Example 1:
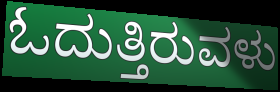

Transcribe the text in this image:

ಓದುತ್ತಿರುವಳು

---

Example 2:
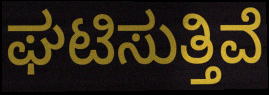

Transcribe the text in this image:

ಘಟಿಸುತ್ತಿವೆ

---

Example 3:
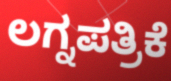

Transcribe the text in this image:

ಲಗ್ನಪತ್ರಿಕೆ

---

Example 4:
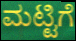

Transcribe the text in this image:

ಮಟ್ಟಿಗೆ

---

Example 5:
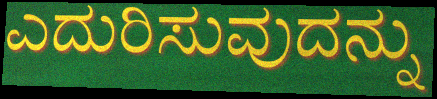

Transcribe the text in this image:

ಎದುರಿಸುವುದನ್ನು